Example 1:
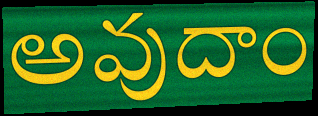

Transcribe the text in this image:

అవుదాం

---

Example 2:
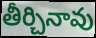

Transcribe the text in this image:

తీర్చినావు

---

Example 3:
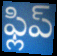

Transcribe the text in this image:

ఫ్లిప్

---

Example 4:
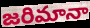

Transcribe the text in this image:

జరిమానా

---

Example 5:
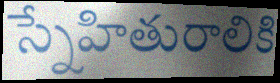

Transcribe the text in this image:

స్నేహితురాలికి